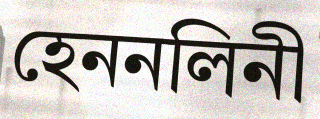
হেননলিনী